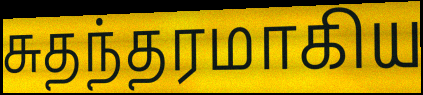
சுதந்தரமாகிய